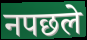
नपछले